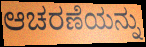
ಆಚರಣೆಯನ್ನು